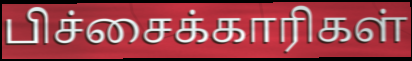
பிச்சைக்காரிகள்